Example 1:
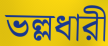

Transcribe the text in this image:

ভল্লধারী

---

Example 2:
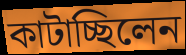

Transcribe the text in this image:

কাটাচ্ছিলেন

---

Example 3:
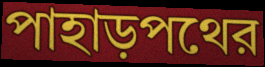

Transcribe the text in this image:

পাহাড়পথের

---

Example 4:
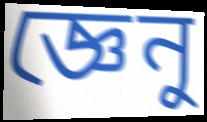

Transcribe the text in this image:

জ্ঞেনু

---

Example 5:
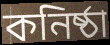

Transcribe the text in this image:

কনিষ্ঠা